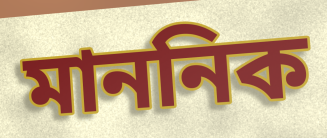
মাননিক